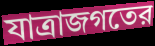
যাত্রাজগতের